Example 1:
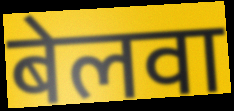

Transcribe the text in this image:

बेलवा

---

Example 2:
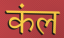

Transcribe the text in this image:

कंल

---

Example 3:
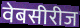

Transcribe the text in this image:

वेबसीरीज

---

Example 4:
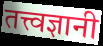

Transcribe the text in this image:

तत्त्वज्ञानी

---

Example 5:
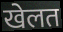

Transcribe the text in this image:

खेलत